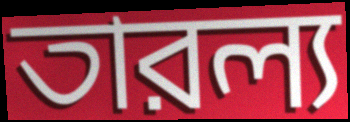
তারল্য